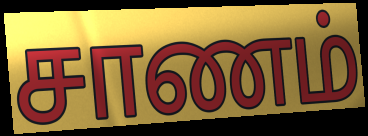
சாணம்